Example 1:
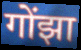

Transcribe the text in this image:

गोंझा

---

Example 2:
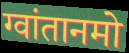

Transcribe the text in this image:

ग्वांतानमो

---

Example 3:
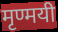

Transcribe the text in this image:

मृण्मयी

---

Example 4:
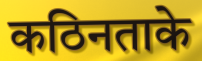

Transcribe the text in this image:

कठिनताके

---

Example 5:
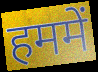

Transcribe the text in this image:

हममें